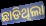
ଛାଡିଥିଲା